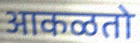
आकळतो